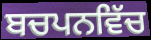
ਬਚਪਨਵਿੱਚ